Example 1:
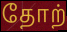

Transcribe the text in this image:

தோற்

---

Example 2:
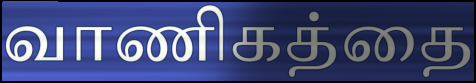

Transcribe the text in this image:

வாணிகத்தை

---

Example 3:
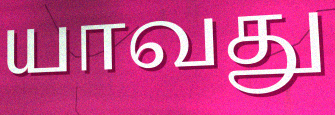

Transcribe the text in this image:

யாவது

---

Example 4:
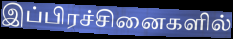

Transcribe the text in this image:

இப்பிரச்சினைகளில்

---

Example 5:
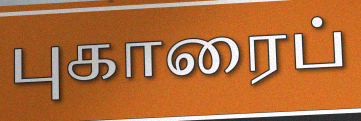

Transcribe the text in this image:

புகாரைப்